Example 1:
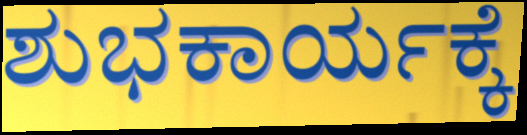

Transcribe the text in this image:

ಶುಭಕಾರ್ಯಕ್ಕೆ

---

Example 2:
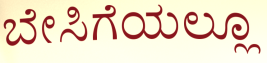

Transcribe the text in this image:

ಬೇಸಿಗೆಯಲ್ಲೂ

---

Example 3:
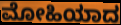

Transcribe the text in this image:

ಮೋಹಿಯಾದ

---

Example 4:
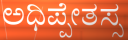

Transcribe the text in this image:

ಅಧಿಪ್ಪೇತಸ್ಸ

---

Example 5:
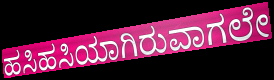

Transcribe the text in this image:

ಹಸಿಹಸಿಯಾಗಿರುವಾಗಲೇ